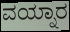
ವಯ್ನಾರ